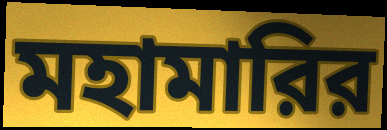
মহামারির